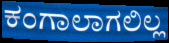
ಕಂಗಾಲಾಗಲಿಲ್ಲ